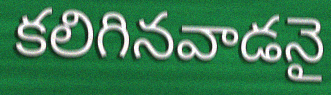
కలిగినవాడనై